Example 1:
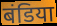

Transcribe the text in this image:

बंडिया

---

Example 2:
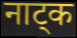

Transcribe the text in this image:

नाट्क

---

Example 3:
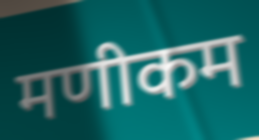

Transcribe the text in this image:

मणीकम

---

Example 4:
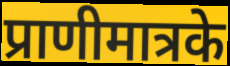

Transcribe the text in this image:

प्राणीमात्रके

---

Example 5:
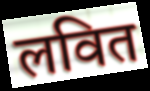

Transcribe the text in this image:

लवित